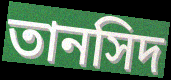
তানসিদ